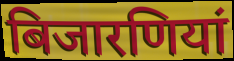
बिजारणियां